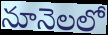
నూనెలలో